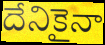
దేనికైనా